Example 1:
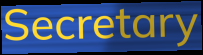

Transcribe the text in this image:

Secretary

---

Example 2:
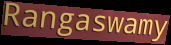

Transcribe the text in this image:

Rangaswamy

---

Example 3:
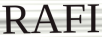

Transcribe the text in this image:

RAFI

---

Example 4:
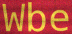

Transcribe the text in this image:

Wbe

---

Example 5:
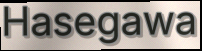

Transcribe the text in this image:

Hasegawa